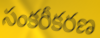
సంకరీకరణ